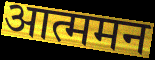
आत्ममन